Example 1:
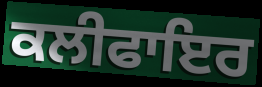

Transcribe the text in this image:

ਕਲੀਫਾਇਰ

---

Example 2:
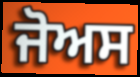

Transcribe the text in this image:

ਜੋਅਸ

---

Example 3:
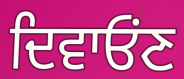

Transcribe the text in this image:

ਦਿਵਾਓੰਣ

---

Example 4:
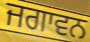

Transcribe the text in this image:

ਜਗਾਵਨ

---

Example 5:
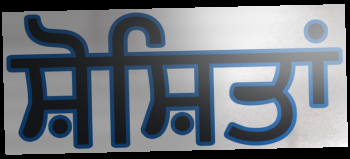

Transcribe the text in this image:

ਸ਼ੋਸ਼ਿਤਾਂ